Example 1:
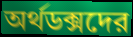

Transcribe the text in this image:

অর্থডক্সদের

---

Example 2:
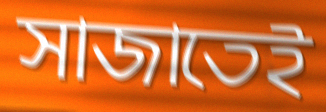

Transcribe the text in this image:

সাজাতেই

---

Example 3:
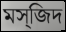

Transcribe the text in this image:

মস্জিদ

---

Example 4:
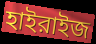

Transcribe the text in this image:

হাইরাইজ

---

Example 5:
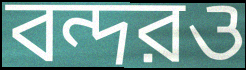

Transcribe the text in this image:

বন্দরও